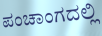
ಪಂಚಾಂಗದಲ್ಲಿ